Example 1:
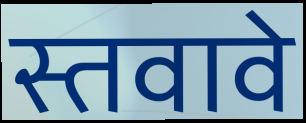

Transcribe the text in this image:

स्तवावे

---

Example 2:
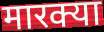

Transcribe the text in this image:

मारक्या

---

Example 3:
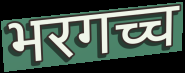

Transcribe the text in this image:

भरगच्च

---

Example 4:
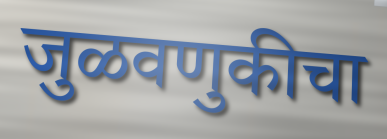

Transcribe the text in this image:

जुळवणुकीचा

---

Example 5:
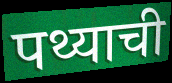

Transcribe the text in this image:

पथ्याची